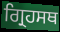
ਗ੍ਰਿਹਸਥ